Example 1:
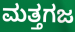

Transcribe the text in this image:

ಮತ್ತಗಜ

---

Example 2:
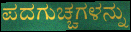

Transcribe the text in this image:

ಪದಗುಚ್ಚಗಳನ್ನು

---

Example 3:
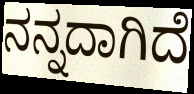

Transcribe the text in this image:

ನನ್ನದಾಗಿದೆ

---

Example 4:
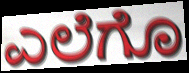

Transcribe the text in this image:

ಎಲೆಗೊ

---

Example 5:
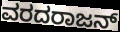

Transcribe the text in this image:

ವರದರಾಜನ್